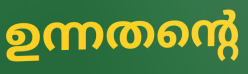
ഉന്നതന്റെ